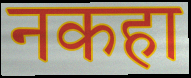
नकहा